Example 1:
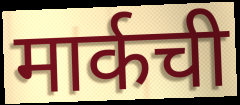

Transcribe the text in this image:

मार्कची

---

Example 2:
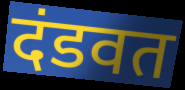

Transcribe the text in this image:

दंडवत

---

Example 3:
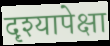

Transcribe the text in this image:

दृश्यापेक्षा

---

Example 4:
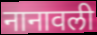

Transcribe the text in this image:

नानावली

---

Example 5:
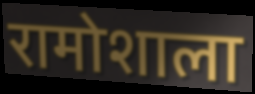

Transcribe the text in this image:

रामोशाला